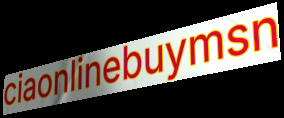
ciaonlinebuymsn